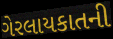
ગેરલાયકાતની